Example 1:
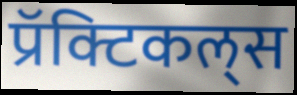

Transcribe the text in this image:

प्रॅक्टिकल्स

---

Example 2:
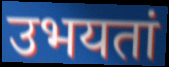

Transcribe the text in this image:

उभयतां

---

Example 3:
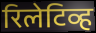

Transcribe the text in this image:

रिलेटिव्ह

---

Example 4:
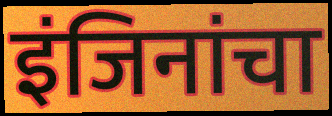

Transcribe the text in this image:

इंजिनांचा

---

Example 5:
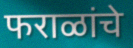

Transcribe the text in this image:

फराळांचे